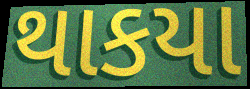
થાકયા